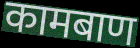
कामबाण